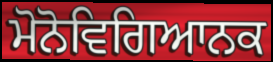
ਮੋਨੋਵਿਗਿਆਨਕ